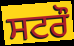
ਸਟਰੌ